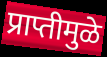
प्राप्तीमुळे